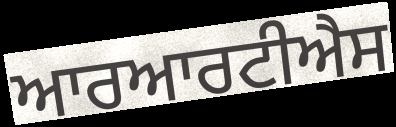
ਆਰਆਰਟੀਐਸ